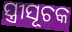
ସ୍ତ୍ରୀସୂଚକ